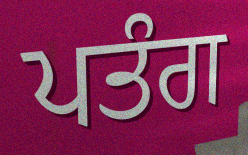
ਪਤੰਗ